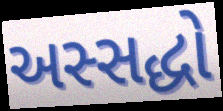
અસ્સદ્ધો